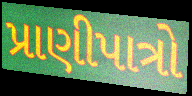
પ્રાણીપાત્રો